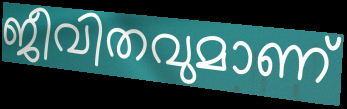
ജീവിതവുമാണ്